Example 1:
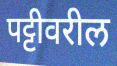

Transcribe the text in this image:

पट्टीवरील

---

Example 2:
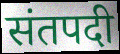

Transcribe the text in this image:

संतपदी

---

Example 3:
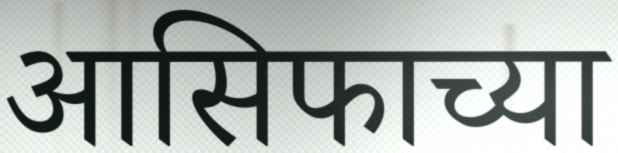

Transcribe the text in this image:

आसिफाच्या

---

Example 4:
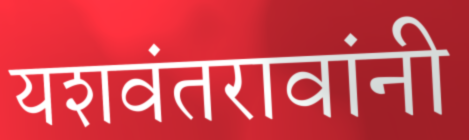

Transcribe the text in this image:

यशवंतरावांनी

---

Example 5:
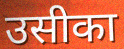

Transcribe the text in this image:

उसीका